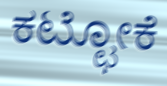
ಕಟ್ಟೋಕೆ